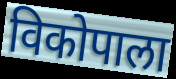
विकोपाला